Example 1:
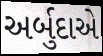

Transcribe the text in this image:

અર્બુદાએ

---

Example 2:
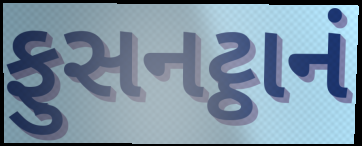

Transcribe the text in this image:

ફુસનટ્ઠાનં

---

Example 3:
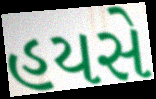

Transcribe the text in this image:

હયસે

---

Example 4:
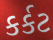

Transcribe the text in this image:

કર્કટ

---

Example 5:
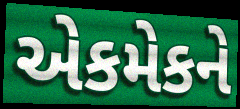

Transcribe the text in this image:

એકમેકને